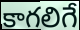
కాగలిగే